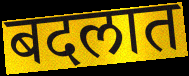
बदलात